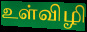
உள்விழி